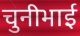
चुनीभाई